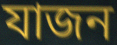
যাজন